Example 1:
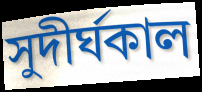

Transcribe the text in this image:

সুদীর্ঘকাল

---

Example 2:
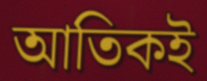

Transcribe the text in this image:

আতিকই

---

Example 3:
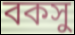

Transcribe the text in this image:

বকসু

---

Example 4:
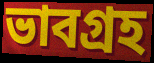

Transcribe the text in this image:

ভাবগ্রহ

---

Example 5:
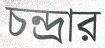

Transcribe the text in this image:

চন্দ্রার